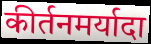
कीर्तनमर्यादा